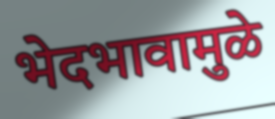
भेदभावामुळे